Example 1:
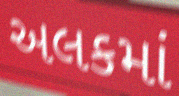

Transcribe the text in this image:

અલકમાં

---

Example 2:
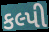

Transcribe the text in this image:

કલ્પી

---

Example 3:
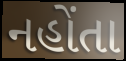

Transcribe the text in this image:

નહોંતા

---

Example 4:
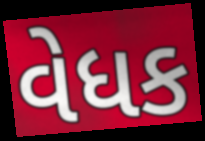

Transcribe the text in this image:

વેધક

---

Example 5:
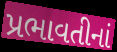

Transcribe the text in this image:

પ્રભાવતીનાં